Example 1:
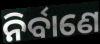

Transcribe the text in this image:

ନିର୍ବାଣେ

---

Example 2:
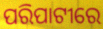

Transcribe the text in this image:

ପରିପାଟୀରେ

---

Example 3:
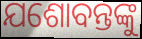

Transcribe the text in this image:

ଯଶୋବନ୍ତଙ୍କୁ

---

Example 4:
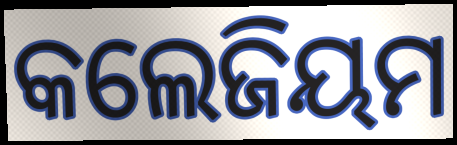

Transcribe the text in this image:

କଲେଜିୟମ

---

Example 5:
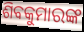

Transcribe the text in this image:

ଶିବକୁମାରଙ୍କ